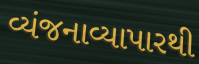
વ્યંજનાવ્યાપારથી